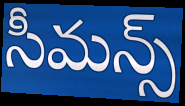
సీమన్స్